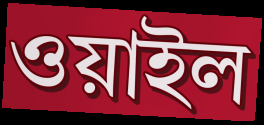
ওয়াইল